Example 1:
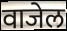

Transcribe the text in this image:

वाजेल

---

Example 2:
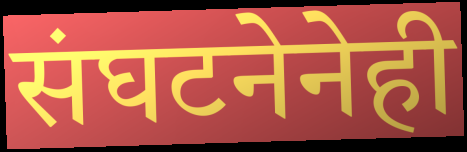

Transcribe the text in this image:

संघटनेनेही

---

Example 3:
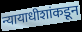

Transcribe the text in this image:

न्यायाधीशांकडून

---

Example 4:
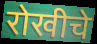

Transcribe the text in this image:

रोखीचे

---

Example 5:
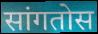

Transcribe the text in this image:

सांगतोस